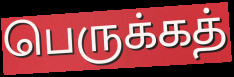
பெருக்கத்